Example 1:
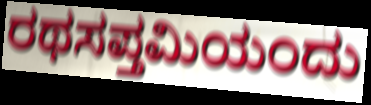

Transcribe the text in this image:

ರಥಸಪ್ತಮಿಯಂದು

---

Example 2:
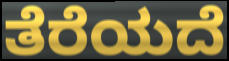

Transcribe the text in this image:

ತೆರೆಯದೆ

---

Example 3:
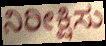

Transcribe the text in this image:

ನಿರೀಕ್ಷಿಸು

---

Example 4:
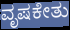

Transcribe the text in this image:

ವೃಷಕೇತು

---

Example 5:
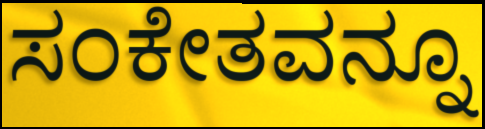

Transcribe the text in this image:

ಸಂಕೇತವನ್ನೂ